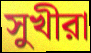
সুখীরা